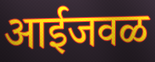
आईजवळ